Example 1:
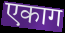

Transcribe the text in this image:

एकाग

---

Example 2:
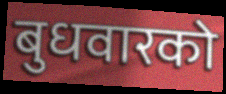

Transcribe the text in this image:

बुधवारको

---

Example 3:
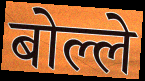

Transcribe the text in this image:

बोल्ले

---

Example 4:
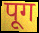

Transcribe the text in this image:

पूग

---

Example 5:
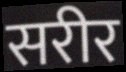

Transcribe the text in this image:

सरीर